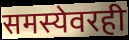
समस्येवरही